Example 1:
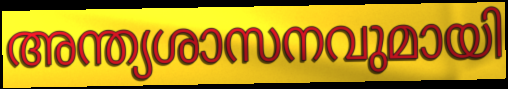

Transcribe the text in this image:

അന്ത്യശാസനവുമായി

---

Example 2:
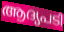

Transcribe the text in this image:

ആദ്യപടി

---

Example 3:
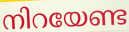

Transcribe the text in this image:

നിറയേണ്ട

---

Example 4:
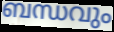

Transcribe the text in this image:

ബന്ധവും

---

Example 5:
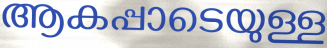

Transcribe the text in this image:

ആകപ്പാടെയുള്ള